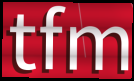
tfm